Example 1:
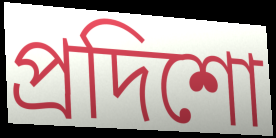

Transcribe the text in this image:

প্রদিশো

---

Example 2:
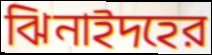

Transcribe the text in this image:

ঝিনাইদহের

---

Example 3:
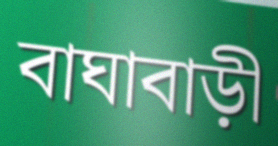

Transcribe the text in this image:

বাঘাবাড়ী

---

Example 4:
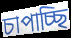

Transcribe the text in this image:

চাপাচ্ছি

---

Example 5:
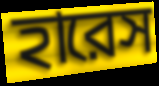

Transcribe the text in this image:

হারেস